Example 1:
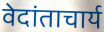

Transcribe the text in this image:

वेदांताचार्य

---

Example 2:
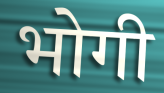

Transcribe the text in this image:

भोगी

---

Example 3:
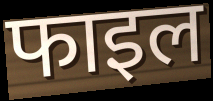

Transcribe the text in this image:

फाइल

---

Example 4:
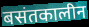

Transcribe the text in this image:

बसंतकालीन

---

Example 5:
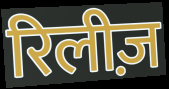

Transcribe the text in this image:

रिलीज़